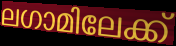
ലഗാമിലേക്ക്